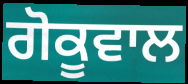
ਗੋਕੂਵਾਲ